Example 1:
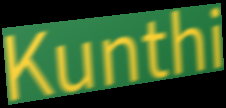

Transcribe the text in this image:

Kunthi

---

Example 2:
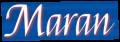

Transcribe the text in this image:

Maran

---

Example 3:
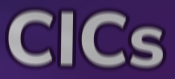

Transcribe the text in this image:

CICs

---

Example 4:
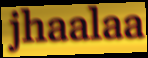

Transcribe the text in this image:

jhaalaa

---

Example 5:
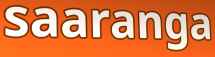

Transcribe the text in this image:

saaranga